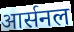
आर्सनल